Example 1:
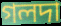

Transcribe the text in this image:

গলদা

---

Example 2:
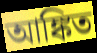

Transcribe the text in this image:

আঙ্কিত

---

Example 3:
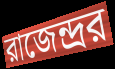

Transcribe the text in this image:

রাজেন্দ্রর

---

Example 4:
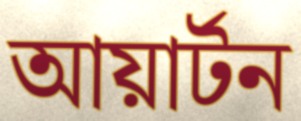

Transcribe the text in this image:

আয়ার্টন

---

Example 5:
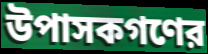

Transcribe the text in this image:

উপাসকগণের